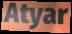
Atyar